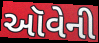
ઑવેની